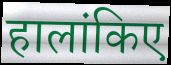
हालांकिए